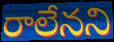
రాలేనని